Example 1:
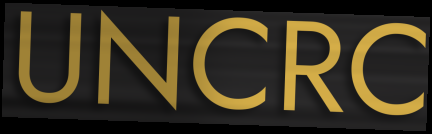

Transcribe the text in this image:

UNCRC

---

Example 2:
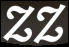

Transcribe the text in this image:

zz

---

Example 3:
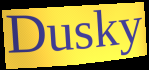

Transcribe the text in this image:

Dusky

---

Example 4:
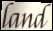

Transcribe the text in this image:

land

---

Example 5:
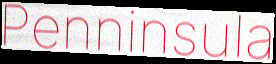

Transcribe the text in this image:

Penninsula